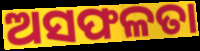
ଅସଫଳତା